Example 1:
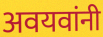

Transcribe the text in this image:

अवयवांनी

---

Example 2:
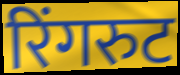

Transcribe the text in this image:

रिंगरुट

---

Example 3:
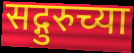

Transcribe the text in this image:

सद्गुरुच्या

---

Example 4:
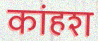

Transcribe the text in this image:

कांहश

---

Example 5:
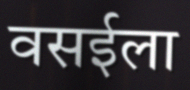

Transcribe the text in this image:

वसईला